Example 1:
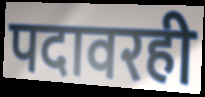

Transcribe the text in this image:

पदावरही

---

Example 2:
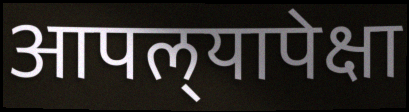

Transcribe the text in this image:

आपल्यापेक्षा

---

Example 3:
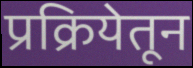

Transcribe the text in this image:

प्रक्रियेतून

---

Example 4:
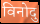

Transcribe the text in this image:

विनोदु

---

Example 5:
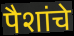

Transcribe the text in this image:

पैशांचे